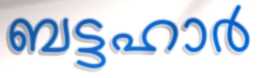
ബട്ടഹാർ